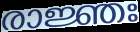
രാജ്ഞഃ